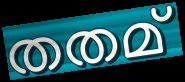
തതമ്